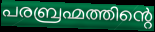
പരബ്രഹ്മത്തിന്റെ